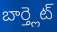
బార్త్లెట్